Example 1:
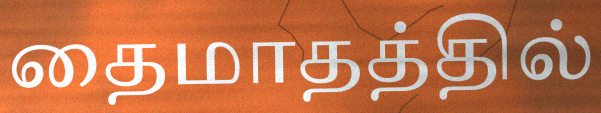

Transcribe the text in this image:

தைமாதத்தில்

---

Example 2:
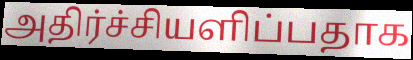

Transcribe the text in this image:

அதிர்ச்சியளிப்பதாக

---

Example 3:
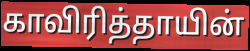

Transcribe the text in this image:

காவிரித்தாயின்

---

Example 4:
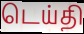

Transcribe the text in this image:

டெய்தி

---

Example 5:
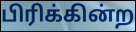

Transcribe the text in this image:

பிரிக்கின்ற